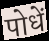
पोधें